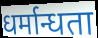
धर्मान्धता